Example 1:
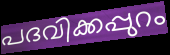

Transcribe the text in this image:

പദവിക്കപ്പുറം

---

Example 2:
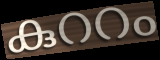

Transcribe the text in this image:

കുററം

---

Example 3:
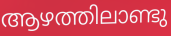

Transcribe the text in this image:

ആഴത്തിലാണ്ടു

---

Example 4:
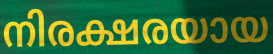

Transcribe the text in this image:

നിരക്ഷരയായ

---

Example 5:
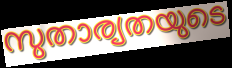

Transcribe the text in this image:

സുതാര്യതയുടെ